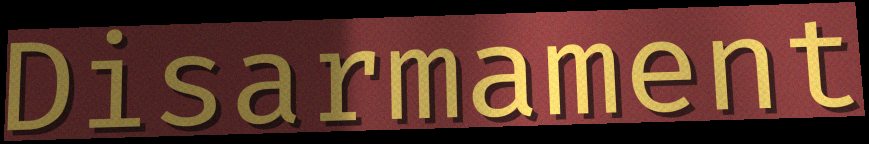
Disarmament